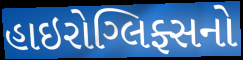
હાઇરોગ્લિફ્સનો